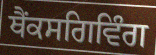
ਥੈਂਕਸਗਿਵਿੰਗ